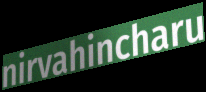
nirvahincharu